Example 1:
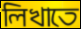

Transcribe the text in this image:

লিখাতে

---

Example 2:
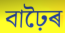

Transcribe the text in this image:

বাঢ়ৈৰ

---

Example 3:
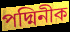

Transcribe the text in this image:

পদ্মিনীক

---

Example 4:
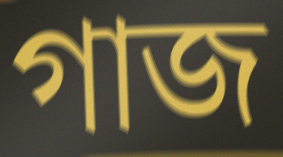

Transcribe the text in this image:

গাজ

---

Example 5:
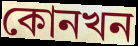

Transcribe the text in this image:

কোনখন